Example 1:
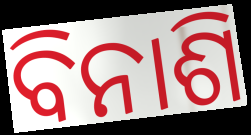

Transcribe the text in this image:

ବିନାଶି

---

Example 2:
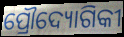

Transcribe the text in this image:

ପ୍ରୌଦ୍ୟୋଗିକୀ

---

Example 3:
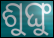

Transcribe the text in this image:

ଶୁଙ୍ଘୁ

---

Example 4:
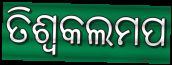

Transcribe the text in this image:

ତିଶ୍ୱକଲମପ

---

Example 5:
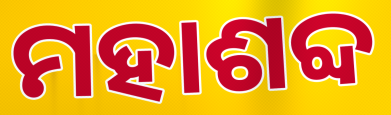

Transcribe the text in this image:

ମହାଶବ୍ଦ